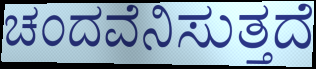
ಚಂದವೆನಿಸುತ್ತದೆ